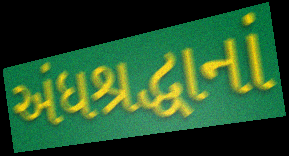
અંધશ્રદ્ધાનાં